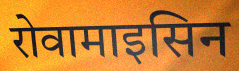
रोवामाइसिन